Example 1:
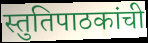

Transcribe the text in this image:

स्तुतिपाठकांची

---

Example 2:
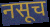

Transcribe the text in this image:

नसूच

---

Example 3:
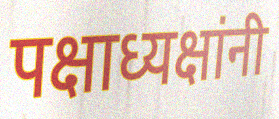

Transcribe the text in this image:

पक्षाध्यक्षांनी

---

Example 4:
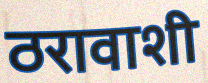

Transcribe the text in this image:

ठरावाशी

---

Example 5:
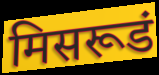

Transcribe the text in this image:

मिसरूडं